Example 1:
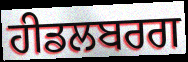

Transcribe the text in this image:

ਹੀਡਲਬਰਗ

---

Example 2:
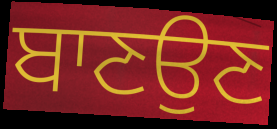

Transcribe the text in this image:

ਬਾਣਉਣ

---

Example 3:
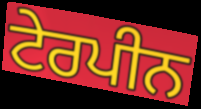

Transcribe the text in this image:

ਟੇਰਪੀਨ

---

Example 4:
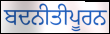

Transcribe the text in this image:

ਬਦਨੀਤੀਪੂਰਨ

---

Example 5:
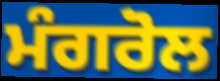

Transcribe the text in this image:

ਮੰਗਰੋਲ